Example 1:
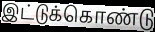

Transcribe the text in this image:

இட்டுக்கொண்டு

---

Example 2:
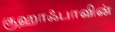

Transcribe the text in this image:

குஹாஃபாவின்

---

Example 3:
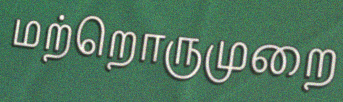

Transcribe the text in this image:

மற்றொருமுறை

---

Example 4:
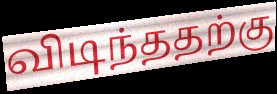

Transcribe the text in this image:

விடிந்ததற்கு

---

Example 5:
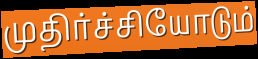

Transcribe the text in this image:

முதிர்ச்சியோடும்